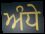
ਅੰਧੇ